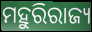
ମହୁରିରାଜ୍ୟ